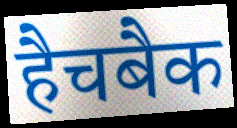
हैचबैक